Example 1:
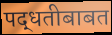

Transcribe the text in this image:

पद्धतीबाबत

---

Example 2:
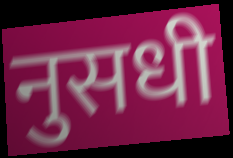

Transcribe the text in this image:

नुसधी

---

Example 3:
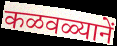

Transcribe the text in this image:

कळवळ्यानें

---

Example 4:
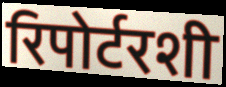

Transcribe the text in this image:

रिपोर्टरशी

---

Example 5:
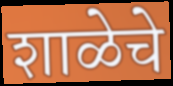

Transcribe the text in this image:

शाळेचे